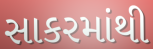
સાકરમાંથી